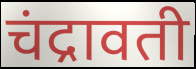
चंद्रावती